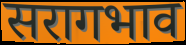
सरागभाव